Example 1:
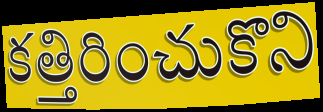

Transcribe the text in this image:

కత్తిరించుకొని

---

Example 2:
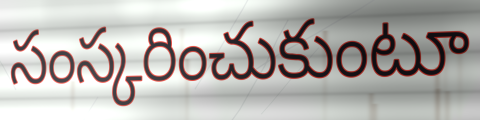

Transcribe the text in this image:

సంస్కరించుకుంటూ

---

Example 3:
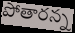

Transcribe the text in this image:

పోతారన్న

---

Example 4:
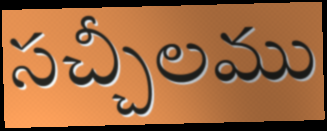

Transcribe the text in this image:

సచ్చీలము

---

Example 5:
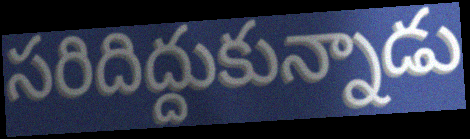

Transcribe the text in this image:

సరిదిద్దుకున్నాడు